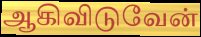
ஆகிவிடுவேன்